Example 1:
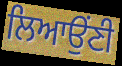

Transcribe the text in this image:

ਲਿਆਉਂਣੀ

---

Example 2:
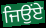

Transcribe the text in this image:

ਜਿਉਂਏ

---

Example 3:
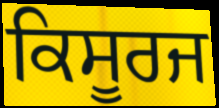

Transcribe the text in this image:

ਕਿਸੂਰਜ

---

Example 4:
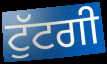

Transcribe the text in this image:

ਟੁੱਟਗੀ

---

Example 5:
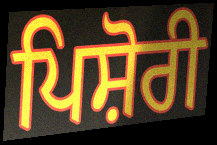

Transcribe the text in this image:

ਪਿਸ਼ੋਰੀ